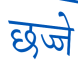
छज्जे